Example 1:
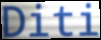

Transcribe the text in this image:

Diti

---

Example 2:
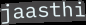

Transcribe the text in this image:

jaasthi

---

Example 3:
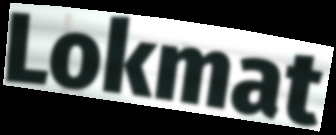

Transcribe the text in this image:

Lokmat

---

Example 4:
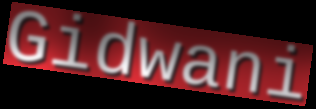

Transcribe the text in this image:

Gidwani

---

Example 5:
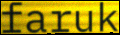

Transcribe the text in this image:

faruk